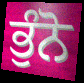
ਭੁੰਨੋ